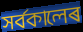
সৰ্বকালেৰ